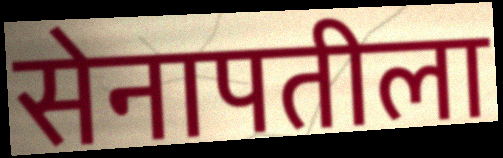
सेनापतीला